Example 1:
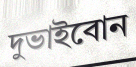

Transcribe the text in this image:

দুভাইবোন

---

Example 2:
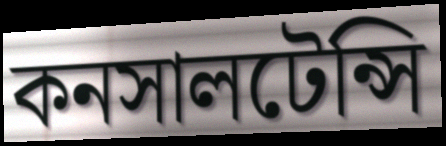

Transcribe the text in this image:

কনসালটেন্সি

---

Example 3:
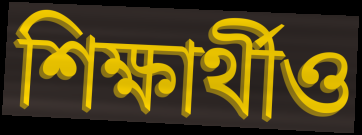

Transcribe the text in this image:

শিক্ষার্থীও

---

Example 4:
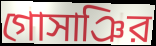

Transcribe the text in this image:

গোসাঞির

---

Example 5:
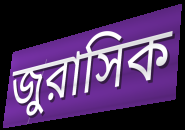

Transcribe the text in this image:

জুরাসিক